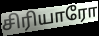
சிரியாரோ